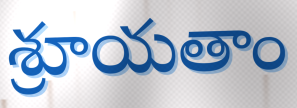
శ్రూయతాం